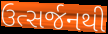
ઉત્સર્જનથી